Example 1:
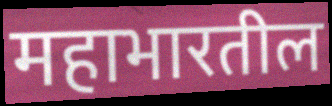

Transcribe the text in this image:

महाभारतील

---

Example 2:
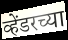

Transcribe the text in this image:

व्हेंडरच्या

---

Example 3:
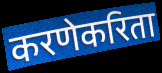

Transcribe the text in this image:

करणेकरिता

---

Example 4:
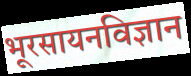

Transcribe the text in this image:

भूरसायनविज्ञान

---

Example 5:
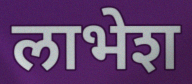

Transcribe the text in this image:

लाभेश